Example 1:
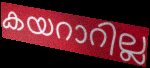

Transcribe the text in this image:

കയറാറില്ല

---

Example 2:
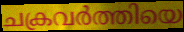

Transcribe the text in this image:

ചക്രവർത്തിയെ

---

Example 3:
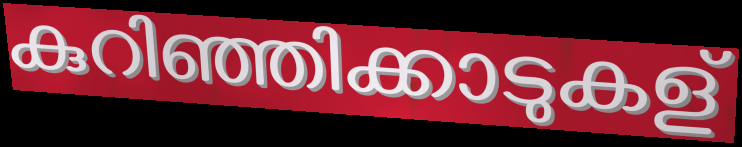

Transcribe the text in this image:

കുറിഞ്ഞിക്കാടുകള്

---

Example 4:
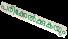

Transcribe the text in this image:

പരിക്കേൽക്കുകയും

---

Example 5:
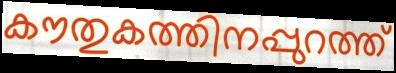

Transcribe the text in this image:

കൗതുകത്തിനപ്പുറത്ത്